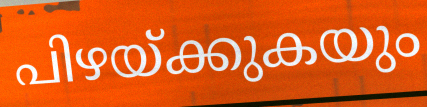
പിഴയ്ക്കുകയും